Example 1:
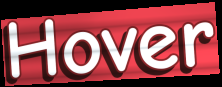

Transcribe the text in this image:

Hover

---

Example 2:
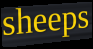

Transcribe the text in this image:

sheeps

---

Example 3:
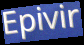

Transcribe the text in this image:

Epivir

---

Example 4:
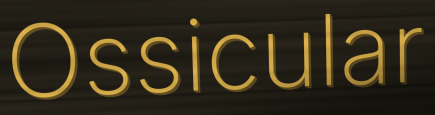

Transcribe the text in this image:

Ossicular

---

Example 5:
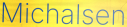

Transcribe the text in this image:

Michalsen